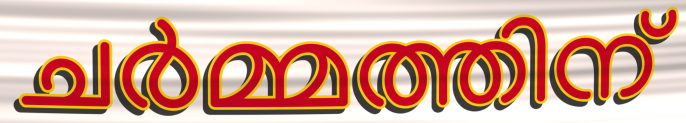
ചർമ്മത്തിന്